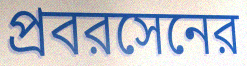
প্রবরসেনের